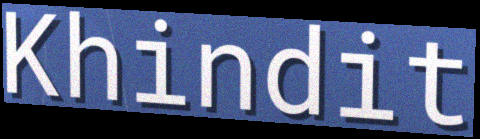
Khindit